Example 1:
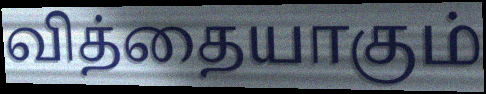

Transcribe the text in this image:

வித்தையாகும்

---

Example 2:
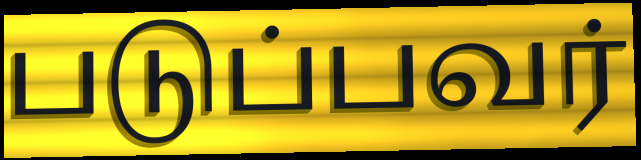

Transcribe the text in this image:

படுப்பவர்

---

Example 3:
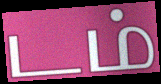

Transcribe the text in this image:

டம்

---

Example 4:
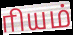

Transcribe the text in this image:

ரியம்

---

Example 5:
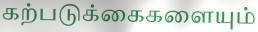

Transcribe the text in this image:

கற்படுக்கைகளையும்